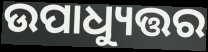
ଉପାଧ୍ୟୁତ୍ତର